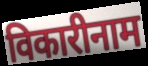
विकारीनाम